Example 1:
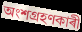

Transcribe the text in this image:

অংশগ্ৰহণকাৰী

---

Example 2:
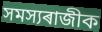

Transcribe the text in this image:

সমস্যৰাজীক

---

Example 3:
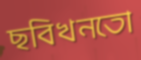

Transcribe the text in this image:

ছবিখনতো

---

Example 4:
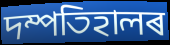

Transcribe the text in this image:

দম্পতিহালৰ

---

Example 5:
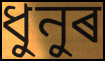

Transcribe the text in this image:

ধুনুৰ